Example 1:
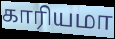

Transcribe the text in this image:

காரியமா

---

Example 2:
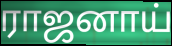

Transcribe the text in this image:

ராஜனாய்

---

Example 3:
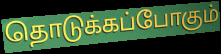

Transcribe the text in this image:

தொடுக்கப்போகும்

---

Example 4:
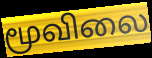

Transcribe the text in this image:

மூவிலை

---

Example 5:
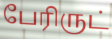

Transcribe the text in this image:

பேரிருட்